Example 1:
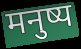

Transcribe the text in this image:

मनुष्य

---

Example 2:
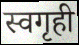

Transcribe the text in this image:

स्वगृही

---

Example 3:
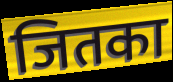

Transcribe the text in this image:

जितका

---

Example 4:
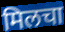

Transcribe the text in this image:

मिलचा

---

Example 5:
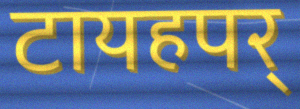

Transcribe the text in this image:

टायहपर्